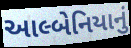
આલ્બેનિયાનું